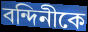
বন্দিনীকে